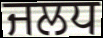
ਜਲਧ